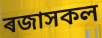
ৰজাসকল